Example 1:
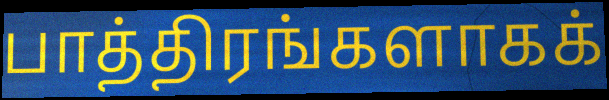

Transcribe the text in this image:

பாத்திரங்களாகக்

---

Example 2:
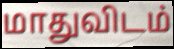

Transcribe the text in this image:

மாதுவிடம்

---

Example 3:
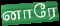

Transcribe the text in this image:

னாரே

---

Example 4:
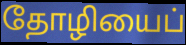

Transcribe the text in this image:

தோழியைப்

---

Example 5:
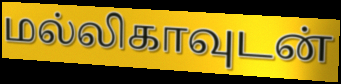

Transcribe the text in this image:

மல்லிகாவுடன்